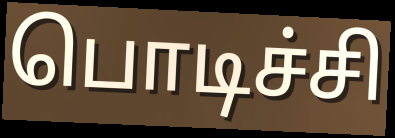
பொடிச்சி